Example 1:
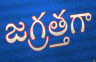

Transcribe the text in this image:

జగ్రత్తగా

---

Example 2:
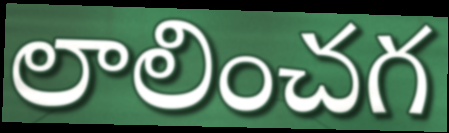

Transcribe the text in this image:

లాలించగ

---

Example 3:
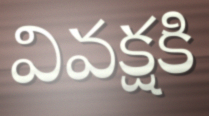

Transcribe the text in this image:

వివక్షకి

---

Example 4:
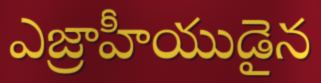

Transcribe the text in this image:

ఎజ్రాహీయుడైన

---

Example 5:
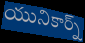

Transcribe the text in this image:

యునికార్న్